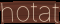
hotat